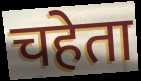
चहेता